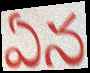
ఏన